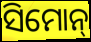
ସିମୋନ୍